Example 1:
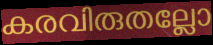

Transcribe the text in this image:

കരവിരുതല്ലോ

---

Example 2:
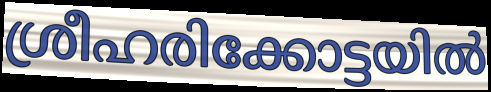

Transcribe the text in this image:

ശ്രീഹരിക്കോട്ടയിൽ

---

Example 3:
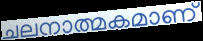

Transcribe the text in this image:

ചലനാത്മകമാണ്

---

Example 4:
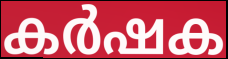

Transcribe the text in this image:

കർഷക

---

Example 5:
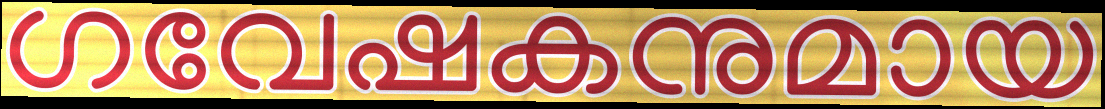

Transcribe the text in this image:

ഗവേഷകനുമായ